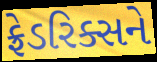
ફ્રેડરિક્સને